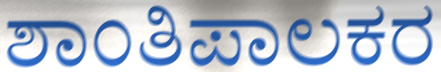
ಶಾಂತಿಪಾಲಕರ